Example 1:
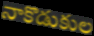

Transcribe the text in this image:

నాకొడుకుల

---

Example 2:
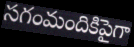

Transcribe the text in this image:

సగంమందికిపైగా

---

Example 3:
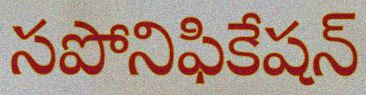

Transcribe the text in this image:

సపోనిఫికేషన్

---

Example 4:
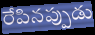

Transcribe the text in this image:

రేపినప్పుడు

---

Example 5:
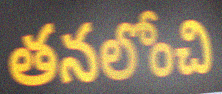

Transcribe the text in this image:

తనలోంచి